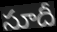
సూదీ